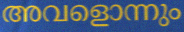
അവളൊന്നും